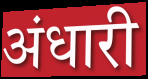
अंधारी